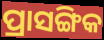
ପ୍ରାସଙ୍ଗିକ